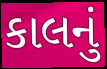
કાલનું